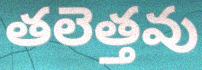
తలెత్తవు